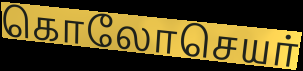
கொலோசெயர்